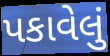
પકાવેલું